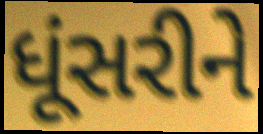
ધૂંસરીને